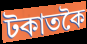
টকাতকৈ